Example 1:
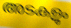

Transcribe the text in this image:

അടകളും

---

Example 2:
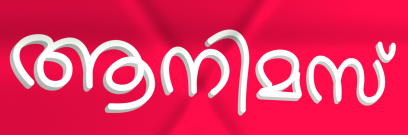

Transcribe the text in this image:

ആനിമസ്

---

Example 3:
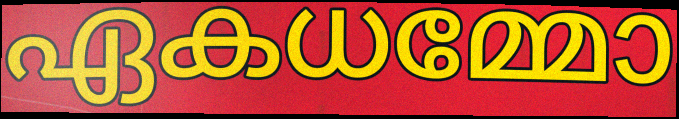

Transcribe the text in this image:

ഏകധമ്മോ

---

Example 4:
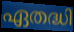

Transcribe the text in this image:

ഏതദ്ധി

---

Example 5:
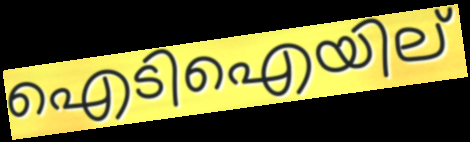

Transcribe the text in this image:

ഐടിഐയില്